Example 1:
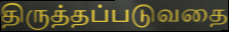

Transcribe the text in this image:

திருத்தப்படுவதை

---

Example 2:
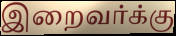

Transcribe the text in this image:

இறைவர்க்கு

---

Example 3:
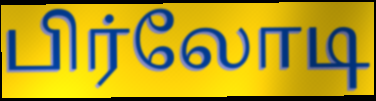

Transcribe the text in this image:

பிர்லோடி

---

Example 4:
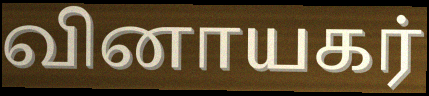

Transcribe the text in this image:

வினாயகர்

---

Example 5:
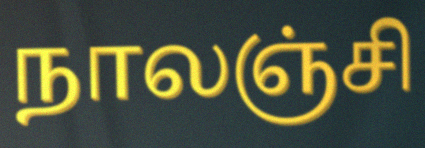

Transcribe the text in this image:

நாலஞ்சி